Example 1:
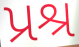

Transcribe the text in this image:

પ્રશ્ર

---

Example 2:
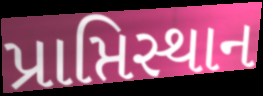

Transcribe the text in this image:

પ્રાપ્તિસ્થાન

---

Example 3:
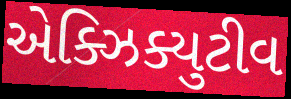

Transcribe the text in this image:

એક્ઝિક્યુટીવ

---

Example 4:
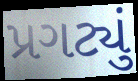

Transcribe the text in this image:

પ્રગટ્યું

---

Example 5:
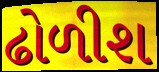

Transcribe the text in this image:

ઢોળીશ